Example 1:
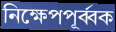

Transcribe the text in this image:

নিক্ষেপপূর্ব্বক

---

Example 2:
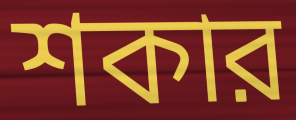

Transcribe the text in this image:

শকার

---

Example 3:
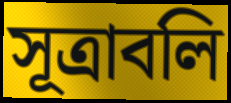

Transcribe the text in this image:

সূত্রাবলি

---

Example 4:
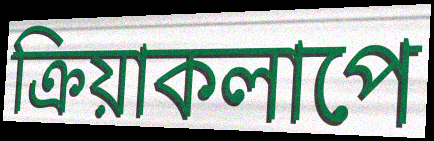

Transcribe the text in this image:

ক্রিয়াকলাপে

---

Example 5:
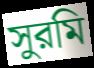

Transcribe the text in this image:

সুরমি